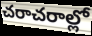
చరాచరాల్లో